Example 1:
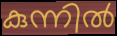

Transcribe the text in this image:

കുന്നിൽ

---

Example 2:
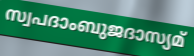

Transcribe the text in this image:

സ്വപദാംബുജദാസ്യമ്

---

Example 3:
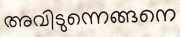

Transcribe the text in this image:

അവിടുന്നെങ്ങനെ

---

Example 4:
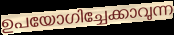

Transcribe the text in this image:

ഉപയോഗിച്ചേക്കാവുന്ന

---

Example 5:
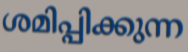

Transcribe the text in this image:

ശമിപ്പിക്കുന്ന